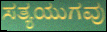
ಸತ್ಯಯುಗವು